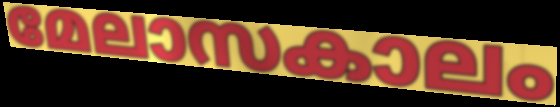
മേലാസകാലം